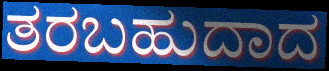
ತರಬಹುದಾದ